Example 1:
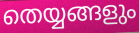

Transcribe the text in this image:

തെയ്യങ്ങളും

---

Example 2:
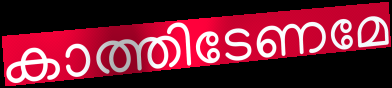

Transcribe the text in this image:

കാത്തിടേണമേ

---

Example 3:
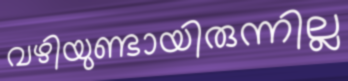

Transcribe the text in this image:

വഴിയുണ്ടായിരുന്നില്ല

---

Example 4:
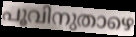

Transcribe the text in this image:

പൂവിനുതാഴെ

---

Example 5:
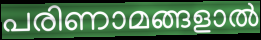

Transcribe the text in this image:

പരിണാമങ്ങളാൽ